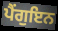
ਪੈਂਗੁਇਨ